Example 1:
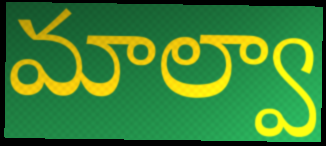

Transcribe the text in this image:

మాల్వా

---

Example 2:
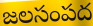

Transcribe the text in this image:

జలసంపద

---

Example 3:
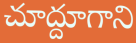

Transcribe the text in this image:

చూద్దూగాని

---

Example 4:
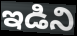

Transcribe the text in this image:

ఇడిని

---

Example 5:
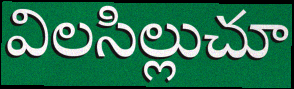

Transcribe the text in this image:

విలసిల్లుచూ